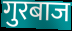
गुरबाज